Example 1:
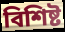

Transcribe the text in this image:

বিশিষ্ট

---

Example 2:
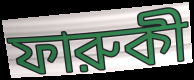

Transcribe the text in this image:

ফাৰুকী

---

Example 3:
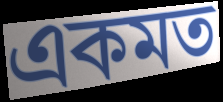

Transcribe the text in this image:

একমত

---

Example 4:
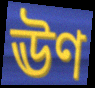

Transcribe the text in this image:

ঊণ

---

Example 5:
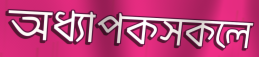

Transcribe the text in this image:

অধ্যাপকসকলে